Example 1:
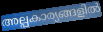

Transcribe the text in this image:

അല്പകാര്യങ്ങളിൽ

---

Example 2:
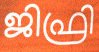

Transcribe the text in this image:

ജിഫ്രി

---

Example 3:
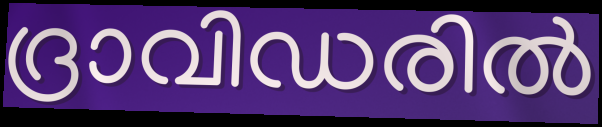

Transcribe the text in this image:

ദ്രാവിഡരിൽ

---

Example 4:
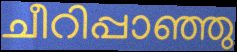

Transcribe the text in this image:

ചീറിപ്പാഞ്ഞു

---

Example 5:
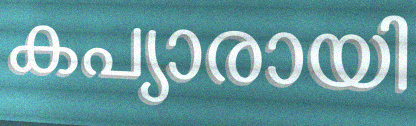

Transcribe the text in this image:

കപ്യാരായി